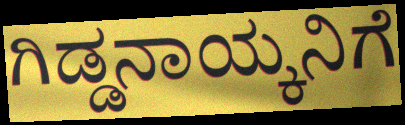
ಗಿಡ್ಡನಾಯ್ಕನಿಗೆ